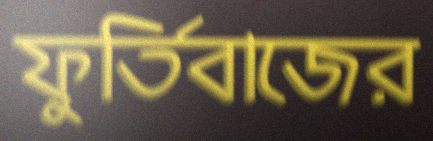
ফুর্তিবাজের